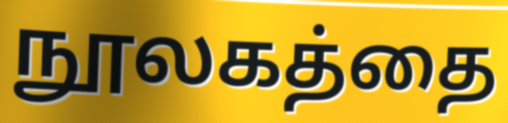
நூலகத்தை